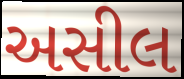
અસીલ